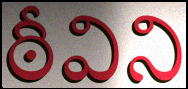
ఠీవిని